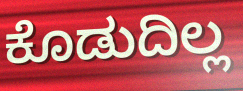
ಕೊಡುದಿಲ್ಲ